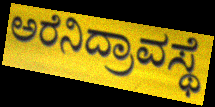
ಅರೆನಿದ್ರಾವಸ್ಥೆ